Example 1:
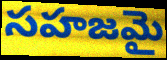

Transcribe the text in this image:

సహజమై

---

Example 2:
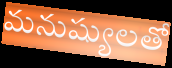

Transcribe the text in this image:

మనుష్యులతో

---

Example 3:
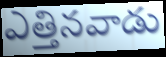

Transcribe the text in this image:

ఎత్తినవాడు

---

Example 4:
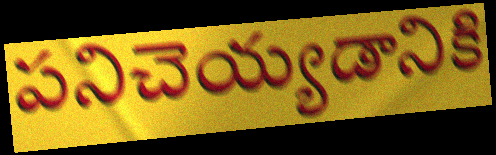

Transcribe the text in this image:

పనిచెయ్యడానికి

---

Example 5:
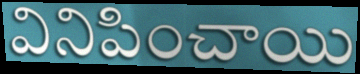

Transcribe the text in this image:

వినిపించాయి